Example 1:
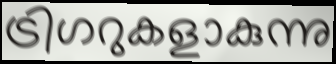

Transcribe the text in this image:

ട്രിഗറുകളാകുന്നു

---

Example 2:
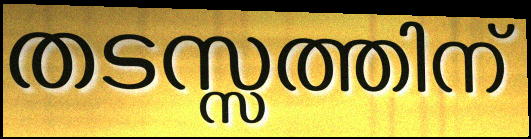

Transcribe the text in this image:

തടസ്സത്തിന്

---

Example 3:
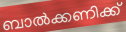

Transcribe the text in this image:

ബാൽക്കണിക്ക്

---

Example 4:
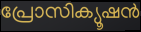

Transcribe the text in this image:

പ്രോസിക്യൂഷൻ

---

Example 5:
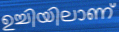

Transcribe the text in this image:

ഉച്ചിയിലാണ്